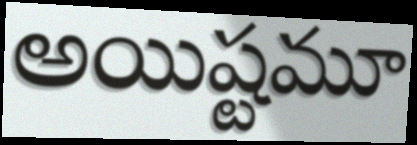
అయిష్టమూ